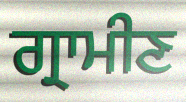
ਗ੍ਰਾਮੀਣ